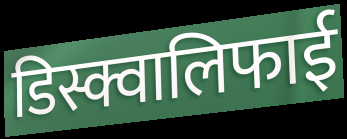
डिस्क्वालिफाई